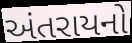
અંતરાયનો